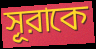
সূরাকে